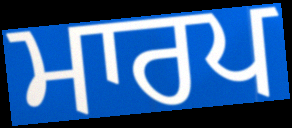
ਮਾਰਪ